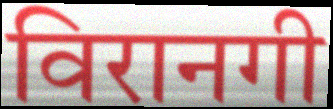
विरानगी